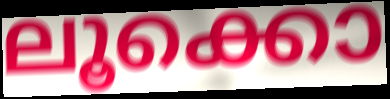
ലൂക്കൊ